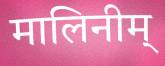
मालिनीम्